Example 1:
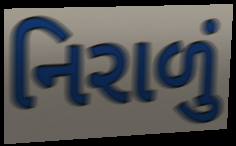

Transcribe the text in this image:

નિરાળું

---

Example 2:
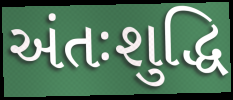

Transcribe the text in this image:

અંતઃશુદ્ધિ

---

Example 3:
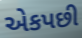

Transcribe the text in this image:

એકપછી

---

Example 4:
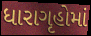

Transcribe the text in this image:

ધારાગૃહોમાં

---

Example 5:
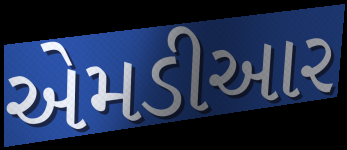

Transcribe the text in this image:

એમડીઆર